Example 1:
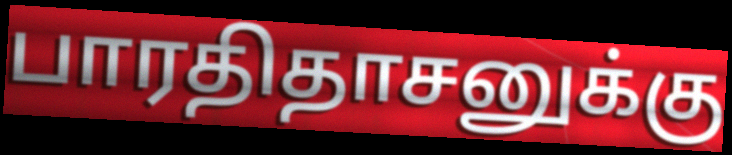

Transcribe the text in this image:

பாரதிதாசனுக்கு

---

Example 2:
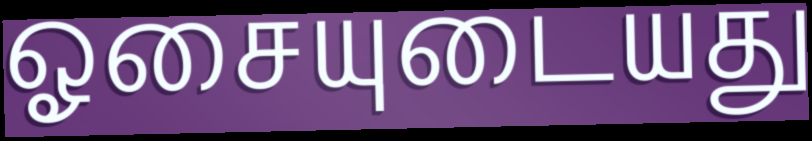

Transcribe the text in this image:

ஓசையுடையது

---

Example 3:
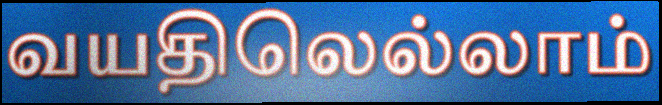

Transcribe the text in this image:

வயதிலெல்லாம்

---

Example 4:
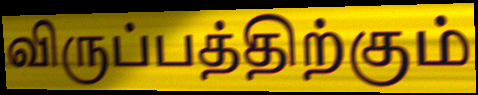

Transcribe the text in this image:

விருப்பத்திற்கும்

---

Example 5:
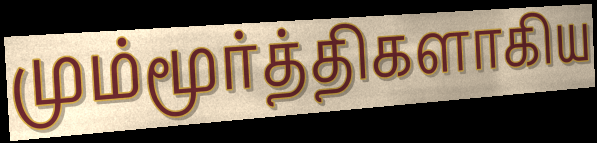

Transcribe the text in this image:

மும்மூர்த்திகளாகிய